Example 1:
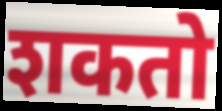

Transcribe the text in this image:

शकतो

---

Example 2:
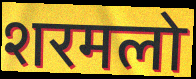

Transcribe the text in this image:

शरमलो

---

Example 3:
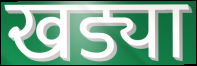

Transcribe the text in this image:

खड्या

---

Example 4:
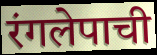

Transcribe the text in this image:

रंगलेपाची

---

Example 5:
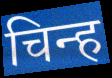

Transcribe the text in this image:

चिन्ह